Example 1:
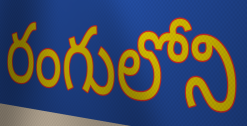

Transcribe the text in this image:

రంగులోని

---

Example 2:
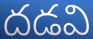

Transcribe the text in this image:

దడవి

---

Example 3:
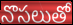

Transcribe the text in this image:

నొసలుతో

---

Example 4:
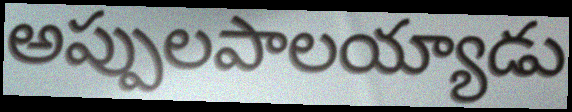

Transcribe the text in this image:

అప్పులపాలయ్యాడు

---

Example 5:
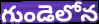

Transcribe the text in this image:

గుండెలోన